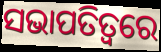
ସଭାପତିତ୍ଵରେ